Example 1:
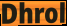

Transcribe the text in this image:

Dhrol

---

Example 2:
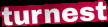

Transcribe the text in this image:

turnest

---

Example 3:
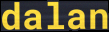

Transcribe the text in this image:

dalan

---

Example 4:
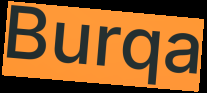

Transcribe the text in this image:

Burqa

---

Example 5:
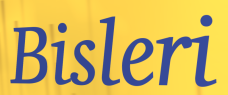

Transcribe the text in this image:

Bisleri